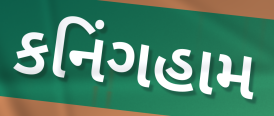
કનિંગહામ